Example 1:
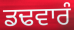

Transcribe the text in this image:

ਡਢਵਾਰੰ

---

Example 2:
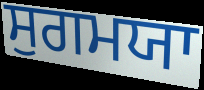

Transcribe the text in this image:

ਸੁਗਮਯਾ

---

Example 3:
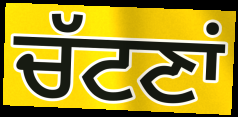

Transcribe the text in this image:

ਚੱਟਣਾਂ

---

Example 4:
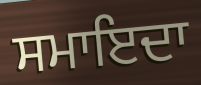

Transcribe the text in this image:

ਸਮਾਇਦਾ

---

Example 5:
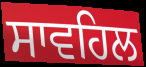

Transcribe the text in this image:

ਸਾਵਹਿਲ